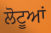
ਲੋਟੂਆਂ